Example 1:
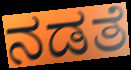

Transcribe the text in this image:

ನಡತೆ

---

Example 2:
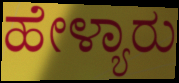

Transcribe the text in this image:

ಹೇಳ್ಯಾರು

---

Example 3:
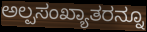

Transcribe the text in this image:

ಅಲ್ಪಸಂಖ್ಯಾತರನ್ನೂ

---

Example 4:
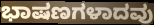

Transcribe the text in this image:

ಭಾಷಣಗಳಾದವು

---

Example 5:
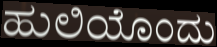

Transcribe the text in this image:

ಹುಲಿಯೊಂದು